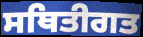
ਸਥਿਤੀਗਤ